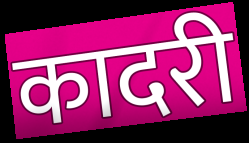
कादरी